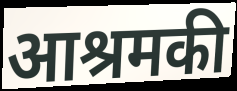
आश्रमकी